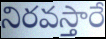
నిరవస్తారే